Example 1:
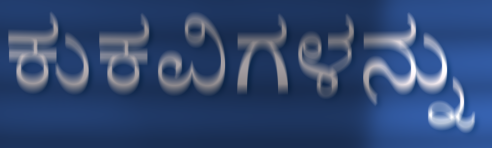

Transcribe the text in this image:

ಕುಕವಿಗಳನ್ನು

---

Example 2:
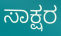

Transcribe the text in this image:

ಸಾಕ್ಷರ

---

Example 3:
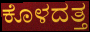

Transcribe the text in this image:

ಕೊಳದತ್ತ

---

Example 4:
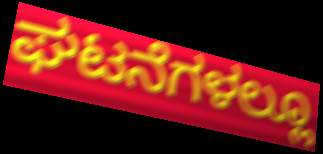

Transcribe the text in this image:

ಘಟನೆಗಳಲ್ಲೂ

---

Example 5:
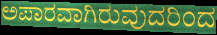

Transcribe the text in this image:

ಅಪಾರವಾಗಿರುವುದರಿಂದ